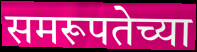
समरूपतेच्या